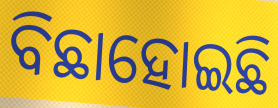
ବିଛାହୋଇଛି